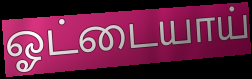
ஓட்டையாய்